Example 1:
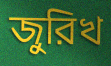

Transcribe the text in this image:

জুরিখ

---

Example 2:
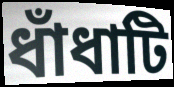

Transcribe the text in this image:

ধাঁধাটি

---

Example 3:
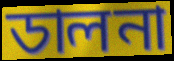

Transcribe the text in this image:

ডালনা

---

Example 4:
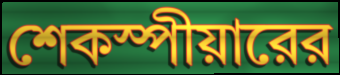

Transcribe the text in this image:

শেকস্পীয়ারের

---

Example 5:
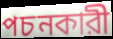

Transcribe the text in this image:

পচনকারী